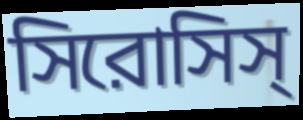
সিরোসিস্